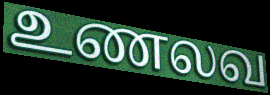
உணலவ